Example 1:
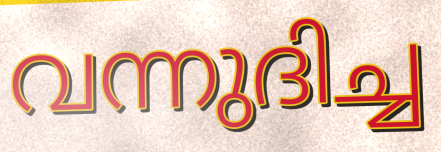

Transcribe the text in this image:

വന്നുദിച്ച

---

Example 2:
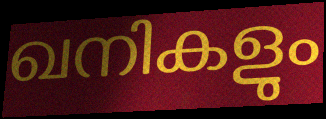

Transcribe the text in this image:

ഖനികളും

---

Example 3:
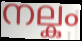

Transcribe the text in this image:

നല്കും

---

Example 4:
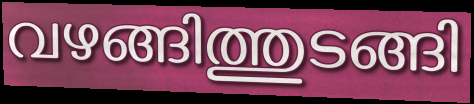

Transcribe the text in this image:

വഴങ്ങിത്തുടങ്ങി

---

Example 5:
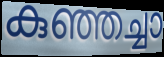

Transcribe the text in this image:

കുഞ്ഞച്ചാ